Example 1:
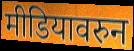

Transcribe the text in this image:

मीडियावरुन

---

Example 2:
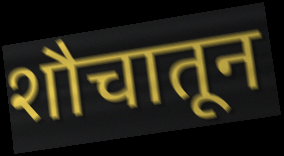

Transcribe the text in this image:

शौचातून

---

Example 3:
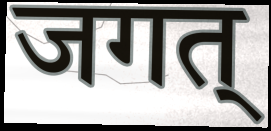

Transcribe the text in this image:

जगत्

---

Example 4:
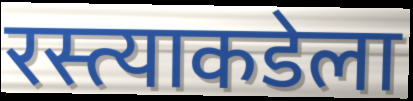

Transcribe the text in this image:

रस्त्याकडेला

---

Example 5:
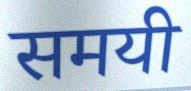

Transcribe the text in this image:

समयी